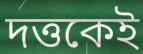
দত্তকেই